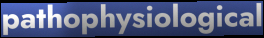
pathophysiological